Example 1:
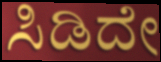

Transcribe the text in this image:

ಸಿಡಿದೇ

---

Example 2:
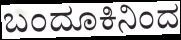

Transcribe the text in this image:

ಬಂದೂಕಿನಿಂದ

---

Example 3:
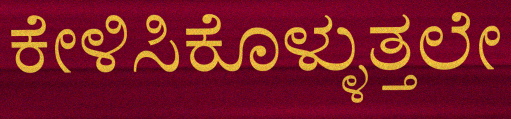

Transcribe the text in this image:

ಕೇಳಿಸಿಕೊಳ್ಳುತ್ತಲೇ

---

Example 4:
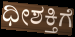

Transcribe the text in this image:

ಧೀಶಕ್ತಿಗೆ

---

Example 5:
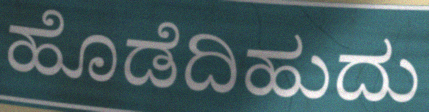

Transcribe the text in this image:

ಹೊಡೆದಿಹುದು